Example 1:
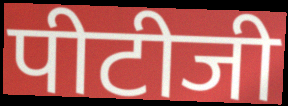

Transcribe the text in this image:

पीटीजी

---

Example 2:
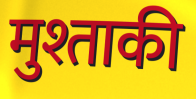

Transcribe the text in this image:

मुश्ताकी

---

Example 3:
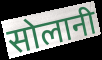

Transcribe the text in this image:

सोलानी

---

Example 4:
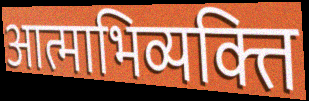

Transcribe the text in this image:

आत्माभिव्यक्ति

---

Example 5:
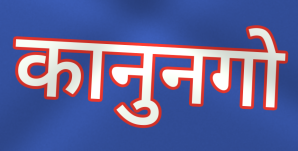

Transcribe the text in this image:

कानुनगो